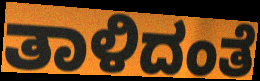
ತಾಳಿದಂತೆ